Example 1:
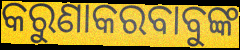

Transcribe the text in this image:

କରୁଣାକରବାବୁଙ୍କ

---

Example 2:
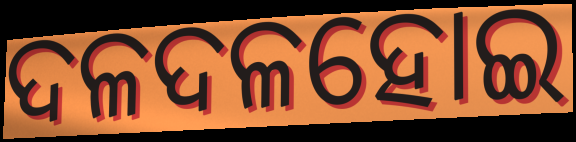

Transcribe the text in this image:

ଦଳଦଳହୋଇ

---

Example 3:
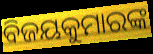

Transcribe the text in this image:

ବିଜୟକୁମାରଙ୍କ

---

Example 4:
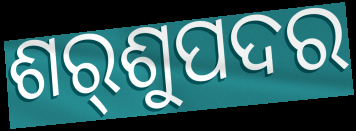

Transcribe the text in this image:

ଶର୍‌ଶୁପଦର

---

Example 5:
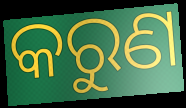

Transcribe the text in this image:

କରୁଣ